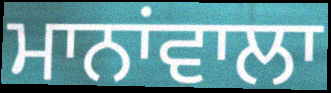
ਮਾਨਾਂਵਾਲਾ